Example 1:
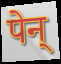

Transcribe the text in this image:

पेन्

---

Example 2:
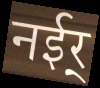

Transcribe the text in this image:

नईर्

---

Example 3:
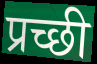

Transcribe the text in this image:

प्रच्छी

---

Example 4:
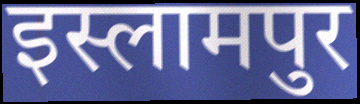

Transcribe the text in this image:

इस्लामपुर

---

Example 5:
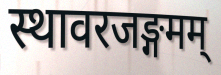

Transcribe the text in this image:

स्थावरजङ्गमम्